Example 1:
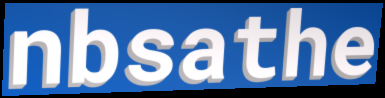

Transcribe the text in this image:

nbsathe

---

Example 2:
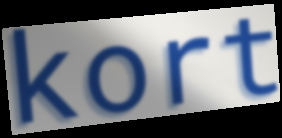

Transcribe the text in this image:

kort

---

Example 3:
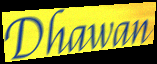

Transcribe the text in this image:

Dhawan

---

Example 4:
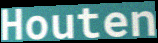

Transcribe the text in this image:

Houten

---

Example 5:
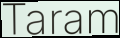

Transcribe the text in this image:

Taram